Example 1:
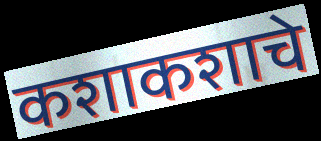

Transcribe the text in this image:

कशाकशाचे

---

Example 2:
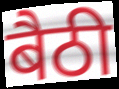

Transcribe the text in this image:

बैठी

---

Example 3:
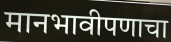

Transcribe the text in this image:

मानभावीपणाचा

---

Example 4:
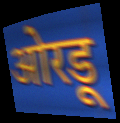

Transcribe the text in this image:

ओरडू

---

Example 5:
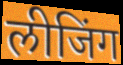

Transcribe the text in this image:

लीजिंग